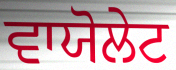
ਵਾਯੋਲੇਟ